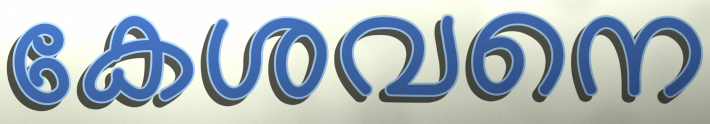
കേശവനെ